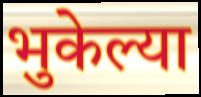
भुकेल्या